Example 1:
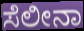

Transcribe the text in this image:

ಸೆಲೀನಾ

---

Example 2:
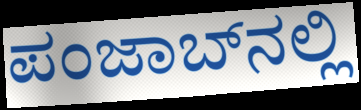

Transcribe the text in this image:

ಪಂಜಾಬ್‌ನಲ್ಲಿ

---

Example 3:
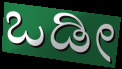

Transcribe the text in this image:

ಒಡೀ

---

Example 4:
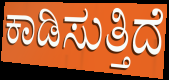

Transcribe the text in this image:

ಕಾಡಿಸುತ್ತಿದೆ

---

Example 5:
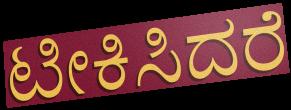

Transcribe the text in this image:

ಟೀಕಿಸಿದರೆ